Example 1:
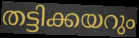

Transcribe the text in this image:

തട്ടിക്കയറും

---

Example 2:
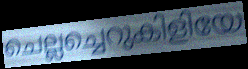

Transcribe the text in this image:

ചെല്ലച്ചെറുകിളിയേ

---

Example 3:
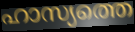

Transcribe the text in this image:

ഹാസ്യത്തെ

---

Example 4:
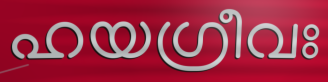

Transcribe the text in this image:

ഹയഗ്രീവഃ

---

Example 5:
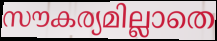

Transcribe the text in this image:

സൗകര്യമില്ലാതെ